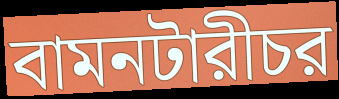
বামনটারীচর